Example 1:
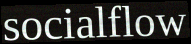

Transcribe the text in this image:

socialflow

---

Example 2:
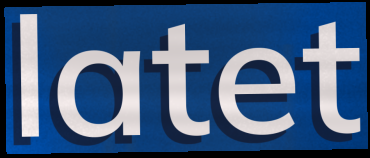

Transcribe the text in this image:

latet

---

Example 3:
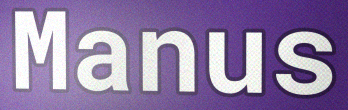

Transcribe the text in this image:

Manus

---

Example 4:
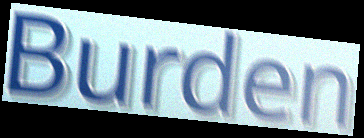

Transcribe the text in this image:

Burden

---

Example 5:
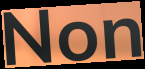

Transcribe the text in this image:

Non